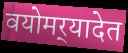
वयोमर्यादेत